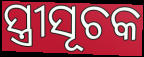
ସ୍ତ୍ରୀସୂଚକ